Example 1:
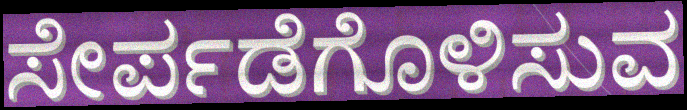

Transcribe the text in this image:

ಸೇರ್ಪಡೆಗೊಳಿಸುವ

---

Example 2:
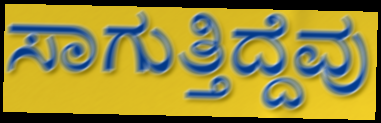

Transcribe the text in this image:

ಸಾಗುತ್ತಿದ್ದೆವು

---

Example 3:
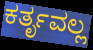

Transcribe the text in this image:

ಕರ್ತೃವಲ್ಲ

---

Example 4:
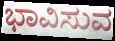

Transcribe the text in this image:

ಭಾವಿಸುವ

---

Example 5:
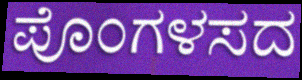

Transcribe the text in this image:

ಪೊಂಗಳಸದ